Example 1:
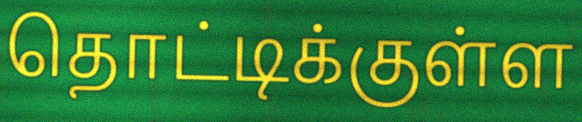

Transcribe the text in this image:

தொட்டிக்குள்ள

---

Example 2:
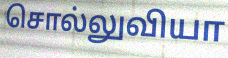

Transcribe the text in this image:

சொல்லுவியா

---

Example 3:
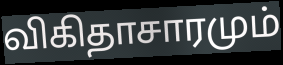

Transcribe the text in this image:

விகிதாசாரமும்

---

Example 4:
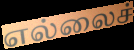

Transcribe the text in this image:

எல்லைச்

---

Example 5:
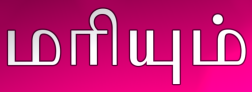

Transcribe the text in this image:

மரியும்